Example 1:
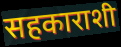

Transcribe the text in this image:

सहकाराशी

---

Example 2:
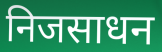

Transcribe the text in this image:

निजसाधन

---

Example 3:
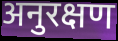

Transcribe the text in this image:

अनुरक्षण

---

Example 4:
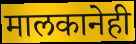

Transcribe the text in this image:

मालकानेही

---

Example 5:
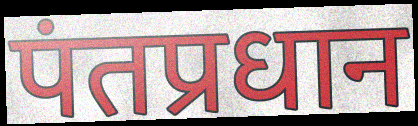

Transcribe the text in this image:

पंतप्रधान